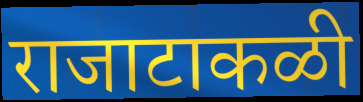
राजाटाकळी